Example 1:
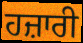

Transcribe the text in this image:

ਹਜ਼ਾਰੀ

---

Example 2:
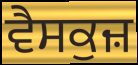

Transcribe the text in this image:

ਵੈਸਕੁਜ਼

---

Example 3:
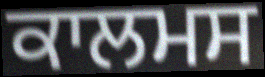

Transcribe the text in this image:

ਕਾਲਮਸ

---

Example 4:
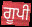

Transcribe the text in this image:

ਗੂਪੀ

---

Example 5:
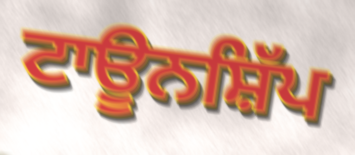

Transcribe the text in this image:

ਟਾਊਨਸ਼ਿੱਪ